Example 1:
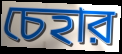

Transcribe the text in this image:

চেহার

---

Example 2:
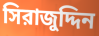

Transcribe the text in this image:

সিরাজুদ্দিন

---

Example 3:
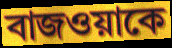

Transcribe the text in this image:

বাজওয়াকে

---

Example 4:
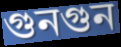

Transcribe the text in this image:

গুনগুন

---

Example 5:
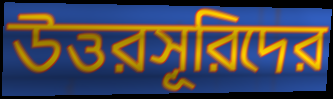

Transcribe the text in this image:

উত্তরসূরিদের